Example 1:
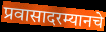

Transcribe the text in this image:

प्रवासादरम्यानचे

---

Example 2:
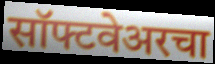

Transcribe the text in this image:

सॉफ्टवेअरचा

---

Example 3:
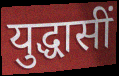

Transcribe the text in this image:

युद्धासीं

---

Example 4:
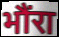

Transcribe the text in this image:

भौंरा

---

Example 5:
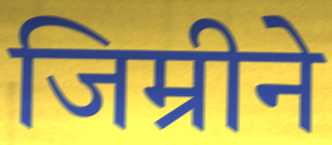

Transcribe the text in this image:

जिम्रीने